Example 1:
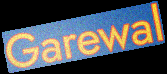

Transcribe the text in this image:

Garewal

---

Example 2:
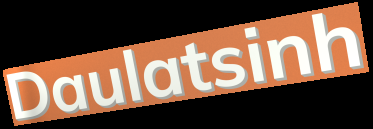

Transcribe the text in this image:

Daulatsinh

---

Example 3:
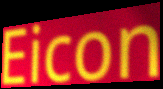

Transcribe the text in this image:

Eicon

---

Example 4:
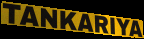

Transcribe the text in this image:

TANKARIYA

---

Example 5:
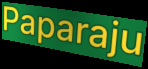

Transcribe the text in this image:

Paparaju